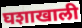
घशाखाली